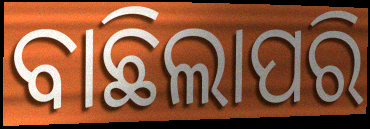
ବାଛିଲାପରି